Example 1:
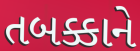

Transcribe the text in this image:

તબક્કાને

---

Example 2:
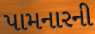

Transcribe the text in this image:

પામનારની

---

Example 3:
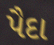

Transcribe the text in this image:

પૈદા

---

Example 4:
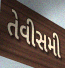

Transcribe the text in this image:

તેવીસમી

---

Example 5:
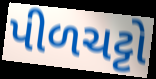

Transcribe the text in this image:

પીળચટ્ટો